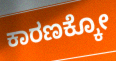
ಕಾರಣಕ್ಕೋ